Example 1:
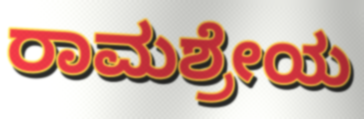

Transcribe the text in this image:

ರಾಮಶ್ರೇಯ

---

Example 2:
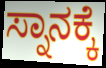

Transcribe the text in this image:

ಸ್ನಾನಕ್ಕೆ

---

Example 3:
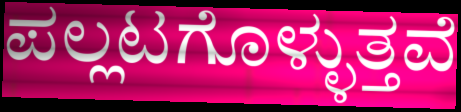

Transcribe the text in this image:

ಪಲ್ಲಟಗೊಳ್ಳುತ್ತವೆ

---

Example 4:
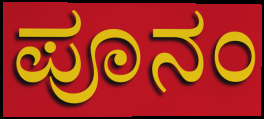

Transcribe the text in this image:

ಪೂನಂ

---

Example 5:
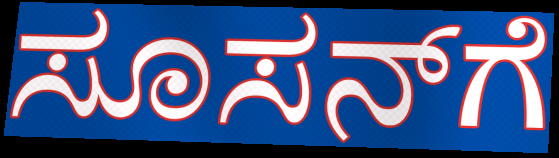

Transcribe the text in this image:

ಸೂಸನ್‌ಗೆ